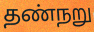
தண்நறு